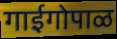
गाईगोपाळ